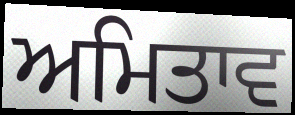
ਅਮਿਤਾਵ